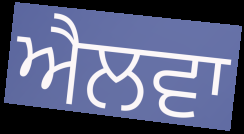
ਐਲਵਾ